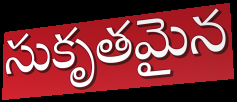
సుకృతమైన